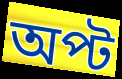
অপ্ট